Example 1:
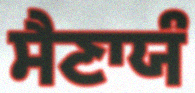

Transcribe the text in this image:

ਸੈਣਾਯੰ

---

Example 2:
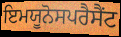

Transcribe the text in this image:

ਇਮਯੂਨੋਸਪਰੈਸੈਂਟ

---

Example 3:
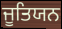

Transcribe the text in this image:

ਜੂਤਿਯਨ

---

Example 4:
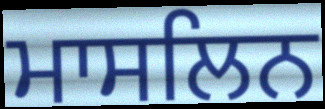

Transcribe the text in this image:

ਮਾਸਲਿਨ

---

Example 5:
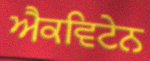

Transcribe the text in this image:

ਐਕਵਿਟੇਨ